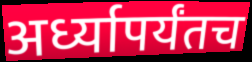
अर्ध्यापर्यंतच